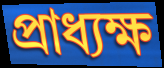
প্রাধ্যক্ষ